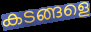
കടങ്ങളെ